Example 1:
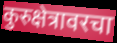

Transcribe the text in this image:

कुरुक्षेत्रावरचा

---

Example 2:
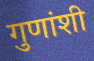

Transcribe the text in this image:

गुणांशी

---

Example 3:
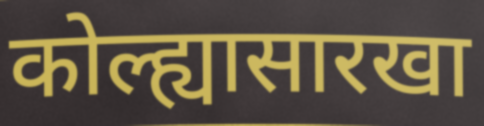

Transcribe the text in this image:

कोल्ह्यासारखा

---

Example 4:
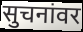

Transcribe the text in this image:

सुचनांवर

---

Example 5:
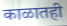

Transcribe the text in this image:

काळातही